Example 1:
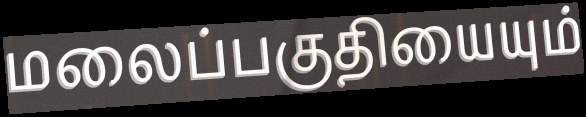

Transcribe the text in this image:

மலைப்பகுதியையும்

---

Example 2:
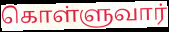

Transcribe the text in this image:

கொள்ளுவார்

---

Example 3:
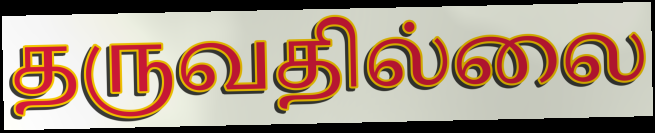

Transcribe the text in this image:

தருவதில்லை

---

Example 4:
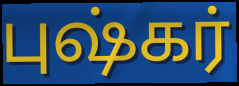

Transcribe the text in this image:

புஷ்கர்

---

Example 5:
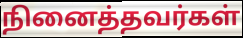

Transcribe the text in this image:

நினைத்தவர்கள்